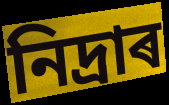
নিদ্ৰাৰ